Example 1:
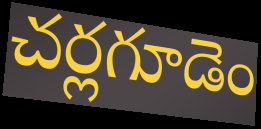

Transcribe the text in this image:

చర్లగూడెం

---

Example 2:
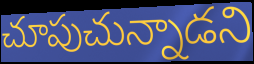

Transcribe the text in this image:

చూపుచున్నాడని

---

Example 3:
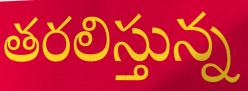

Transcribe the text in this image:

తరలిస్తున్న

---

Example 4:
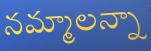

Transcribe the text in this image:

నమ్మాలన్నా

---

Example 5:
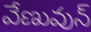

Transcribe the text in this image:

వేణువున్